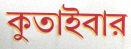
কুতাইবার